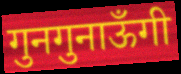
गुनगुनाऊँगी